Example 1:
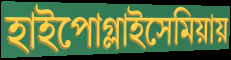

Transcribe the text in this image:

হাইপোগ্লাইসেমিয়ায়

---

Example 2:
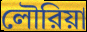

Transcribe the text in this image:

লৌরিয়া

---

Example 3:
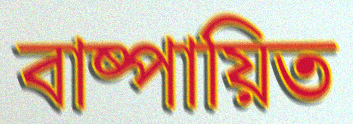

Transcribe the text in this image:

বাষ্পায়িত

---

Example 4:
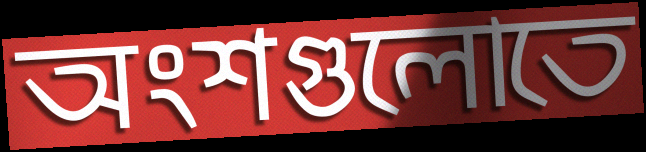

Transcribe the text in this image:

অংশগুলোতে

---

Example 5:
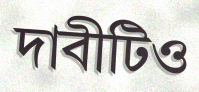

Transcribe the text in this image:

দাবীটিও